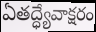
ఏతద్ధ్యేవాక్షరం